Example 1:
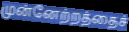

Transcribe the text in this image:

முன்னேற்றத்தைச்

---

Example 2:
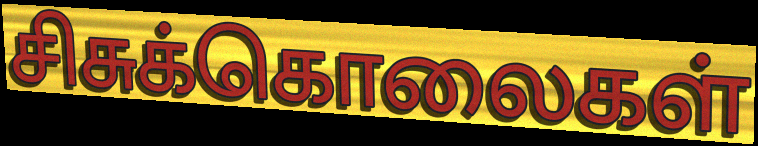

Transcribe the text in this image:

சிசுக்கொலைகள்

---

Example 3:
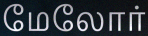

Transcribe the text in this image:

மேலோர்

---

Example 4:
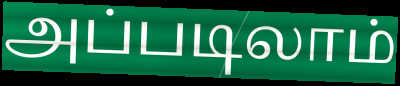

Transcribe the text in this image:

அப்படிலாம்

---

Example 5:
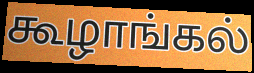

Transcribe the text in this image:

கூழாங்கல்